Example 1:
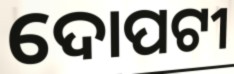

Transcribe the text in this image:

ଦୋପଟୀ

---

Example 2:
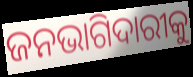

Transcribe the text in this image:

ଜନଭାଗିଦାରୀକୁ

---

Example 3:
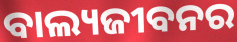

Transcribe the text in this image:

ବାଲ୍ୟଜୀବନର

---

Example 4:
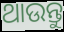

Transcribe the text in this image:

ଥାଉନ୍ତୁ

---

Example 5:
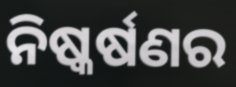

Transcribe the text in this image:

ନିଷ୍କର୍ଷଣର